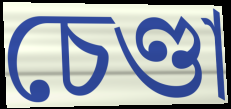
চেণ্ডা